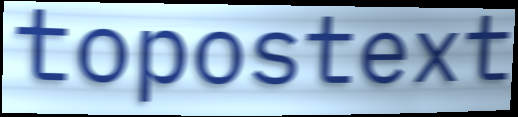
topostext